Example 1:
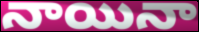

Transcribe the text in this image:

నాయినా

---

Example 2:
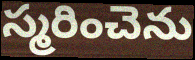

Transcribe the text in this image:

స్మరించెను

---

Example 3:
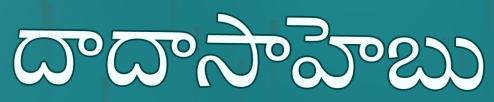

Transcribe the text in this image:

దాదాసాహెబు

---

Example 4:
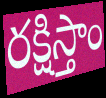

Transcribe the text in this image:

రక్షిస్తాం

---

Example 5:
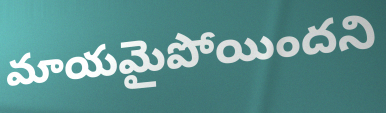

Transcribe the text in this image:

మాయమైపోయిందని